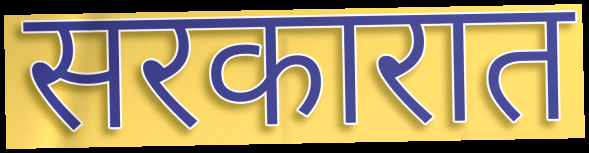
सरकारात